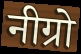
नीग्रो